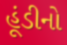
હૂંડીનો